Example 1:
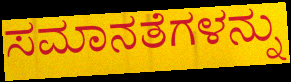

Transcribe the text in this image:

ಸಮಾನತೆಗಳನ್ನು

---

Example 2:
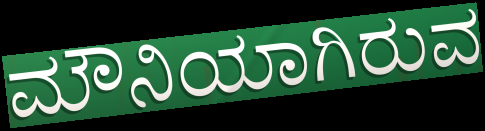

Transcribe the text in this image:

ಮೌನಿಯಾಗಿರುವ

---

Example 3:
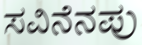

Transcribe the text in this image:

ಸವಿನೆನಪು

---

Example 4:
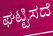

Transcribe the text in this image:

ಘಟ್ಟಿಸದೆ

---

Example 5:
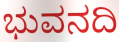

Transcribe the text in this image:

ಭುವನದಿ